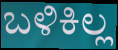
ಬಳಿಕಿಲ್ಲ